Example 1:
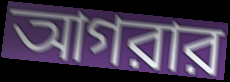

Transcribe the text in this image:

আগরার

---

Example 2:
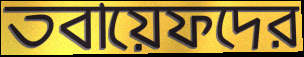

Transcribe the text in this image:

তবায়েফদের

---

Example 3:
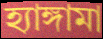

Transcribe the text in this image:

হ্যাঙ্গামা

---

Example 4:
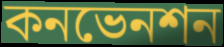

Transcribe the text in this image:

কনভেনশন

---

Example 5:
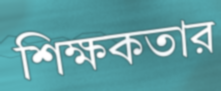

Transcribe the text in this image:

শিক্ষকতার